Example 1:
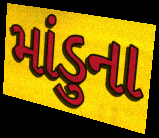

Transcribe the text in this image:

માંડુના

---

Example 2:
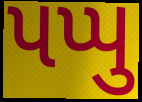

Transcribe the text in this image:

પપ્પુ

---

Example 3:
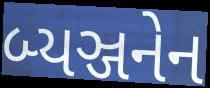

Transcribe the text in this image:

બ્યઞ્જનેન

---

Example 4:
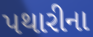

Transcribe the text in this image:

પથારીના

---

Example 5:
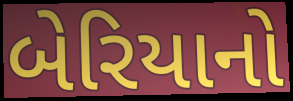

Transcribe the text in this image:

બેરિયાનો